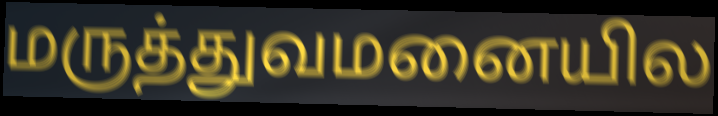
மருத்துவமனையில